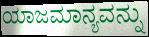
ಯಾಜಮಾನ್ಯವನ್ನು